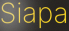
Siapa